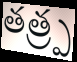
తత్ర్ప